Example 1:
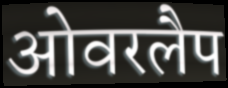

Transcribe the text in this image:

ओवरलैप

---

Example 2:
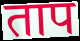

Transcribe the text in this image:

ताप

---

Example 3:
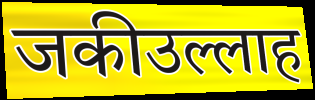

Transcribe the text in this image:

जकीउल्लाह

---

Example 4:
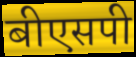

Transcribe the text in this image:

बीएसपी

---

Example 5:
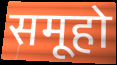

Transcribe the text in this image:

समूहो